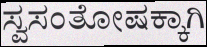
ಸ್ವಸಂತೋಷಕ್ಕಾಗಿ